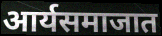
आर्यसमाजात